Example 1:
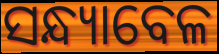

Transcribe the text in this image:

ସନ୍ଧ୍ୟାବେଳ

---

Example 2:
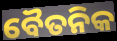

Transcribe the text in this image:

ବୈତନିକ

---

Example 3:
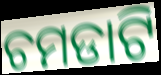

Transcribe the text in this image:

ଚମଡାଟି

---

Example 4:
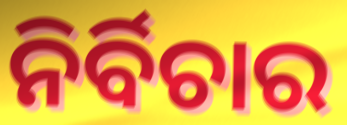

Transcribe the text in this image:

ନିର୍ବିଚାର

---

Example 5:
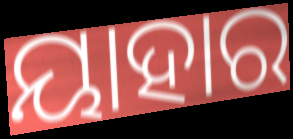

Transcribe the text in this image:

ୟାହାର